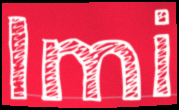
Imi